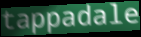
tappadale